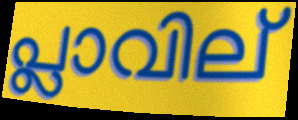
പ്ലാവില്